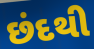
છંદથી